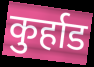
कुर्हाड